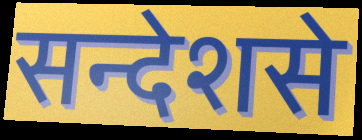
सन्देशसे